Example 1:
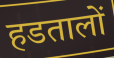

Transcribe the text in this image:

हडतालों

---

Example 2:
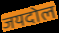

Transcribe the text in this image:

जयदोल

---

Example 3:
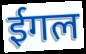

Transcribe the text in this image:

ईगल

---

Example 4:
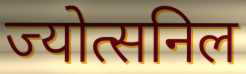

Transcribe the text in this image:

ज्योत्सनिल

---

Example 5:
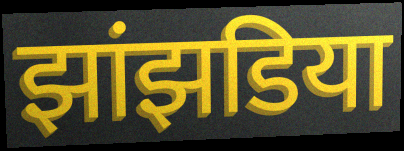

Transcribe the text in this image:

झांझडिया